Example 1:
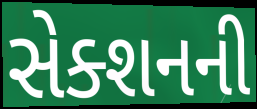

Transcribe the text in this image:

સેક્શનની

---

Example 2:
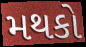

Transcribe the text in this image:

મથકો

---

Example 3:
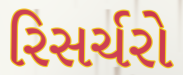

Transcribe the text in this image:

રિસર્ચરો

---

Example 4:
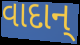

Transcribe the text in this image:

વાદાન્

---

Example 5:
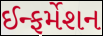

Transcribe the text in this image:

ઈન્ફર્મેશન